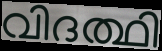
വിദത്ഥി